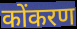
कोंकरण